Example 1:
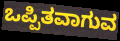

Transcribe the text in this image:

ಒಪ್ಪಿತವಾಗುವ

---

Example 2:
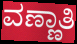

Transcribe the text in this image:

ವಣ್ಣಾತಿ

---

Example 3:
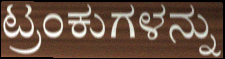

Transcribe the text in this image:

ಟ್ರಂಕುಗಳನ್ನು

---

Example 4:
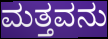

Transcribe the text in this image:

ಮತ್ತವನು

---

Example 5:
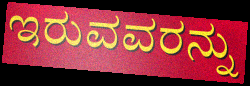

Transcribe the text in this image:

ಇರುವವರನ್ನು